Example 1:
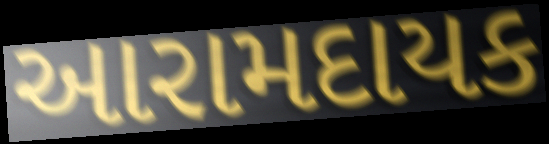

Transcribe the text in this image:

આરામદાયક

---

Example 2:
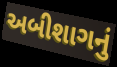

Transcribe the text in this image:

અબીશાગનું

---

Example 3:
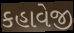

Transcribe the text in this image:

કહાવેજી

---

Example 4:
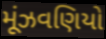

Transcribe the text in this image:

મૂંઝવણિયો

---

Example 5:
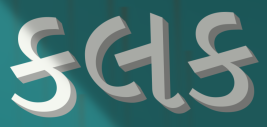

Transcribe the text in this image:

કલક